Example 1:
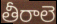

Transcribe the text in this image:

తీరాలె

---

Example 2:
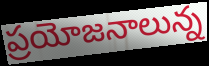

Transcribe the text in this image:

ప్రయోజనాలున్న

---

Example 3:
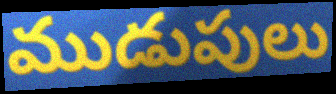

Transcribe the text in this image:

ముడుపులు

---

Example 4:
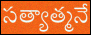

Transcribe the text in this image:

సత్యాత్మనే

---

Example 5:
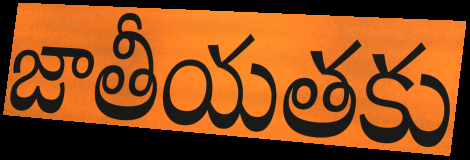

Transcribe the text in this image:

జాతీయతకు